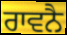
ਰਾਵਨੈ